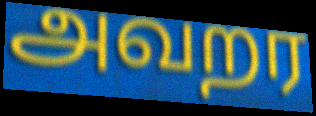
அவறர